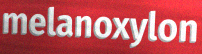
melanoxylon